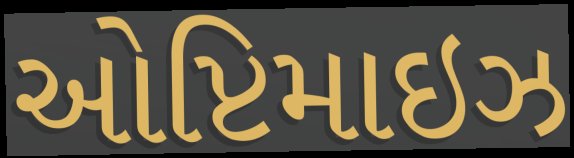
ઓપ્ટિમાઇઝ